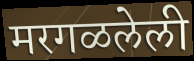
मरगळलेली